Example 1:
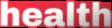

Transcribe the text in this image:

health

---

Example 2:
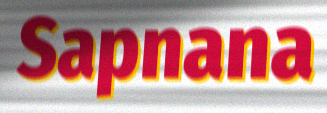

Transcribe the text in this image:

Sapnana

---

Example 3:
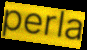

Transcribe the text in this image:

perla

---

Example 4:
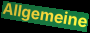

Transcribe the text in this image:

Allgemeine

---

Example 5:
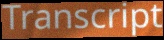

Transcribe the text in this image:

Transcript